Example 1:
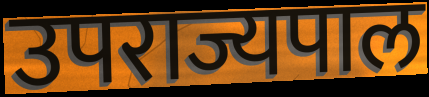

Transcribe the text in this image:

उपराज्यपाल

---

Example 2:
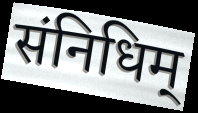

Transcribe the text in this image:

संनिधिम्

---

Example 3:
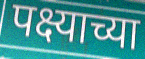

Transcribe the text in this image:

पक्ष्याच्या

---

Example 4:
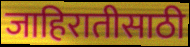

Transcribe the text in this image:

जाहिरातीसाठी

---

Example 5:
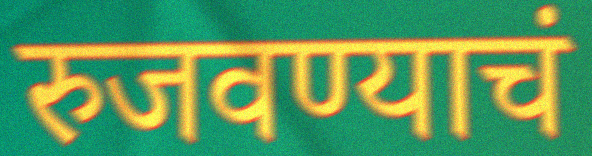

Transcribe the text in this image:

रुजवण्याचं